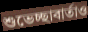
শুভেচ্ছাবার্তাও